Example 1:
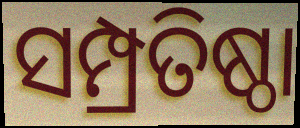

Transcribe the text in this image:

ସମ୍ପ୍ରତିଷ୍ଠା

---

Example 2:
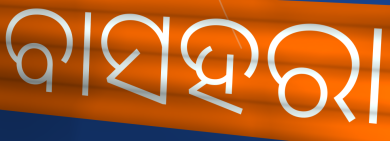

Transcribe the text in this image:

ବାସହରା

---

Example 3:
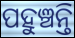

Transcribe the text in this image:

ପହୁଞ୍ଚନ୍ତି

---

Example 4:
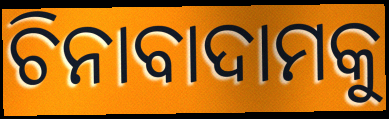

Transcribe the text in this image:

ଚିନାବାଦାମକୁ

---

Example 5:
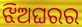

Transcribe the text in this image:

ଝିଅଘରର